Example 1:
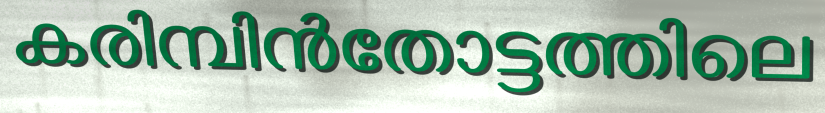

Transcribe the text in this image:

കരിമ്പിൻതോട്ടത്തിലെ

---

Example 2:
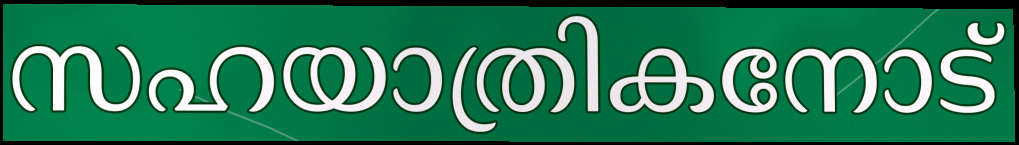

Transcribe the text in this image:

സഹയാത്രികനോട്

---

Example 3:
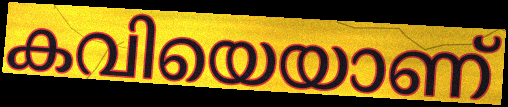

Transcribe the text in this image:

കവിയെയാണ്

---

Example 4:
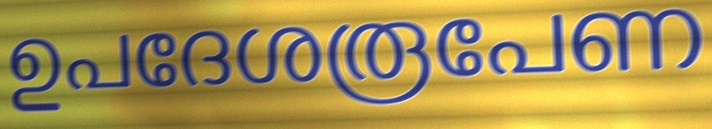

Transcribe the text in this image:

ഉപദേശരൂപേണ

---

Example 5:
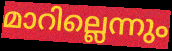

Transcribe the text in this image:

മാറില്ലെന്നും